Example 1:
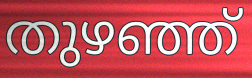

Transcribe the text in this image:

തുഴഞ്ഞ്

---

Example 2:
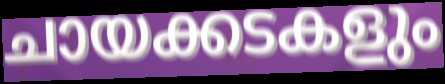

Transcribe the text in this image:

ചായക്കടകളും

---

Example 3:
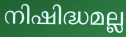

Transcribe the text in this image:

നിഷിദ്ധമല്ല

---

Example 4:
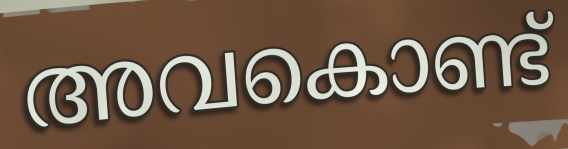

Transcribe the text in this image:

അവകൊണ്ട്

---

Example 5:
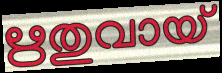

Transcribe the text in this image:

ഋതുവായ്